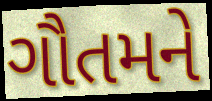
ગૌતમને